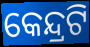
କେନ୍ଦ୍ରଟି